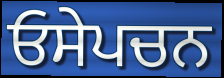
ਓਸੇਪਚਨ